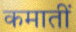
कमातीं